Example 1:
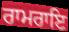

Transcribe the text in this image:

ਰਾਮਰਾਇ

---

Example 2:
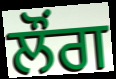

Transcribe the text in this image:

ਲੌਂਗ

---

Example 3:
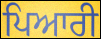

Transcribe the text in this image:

ਪਿਆਰੀ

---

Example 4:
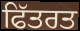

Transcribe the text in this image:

ਫਿੱਤਰਤ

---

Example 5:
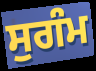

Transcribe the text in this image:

ਸੁਗੰਮ